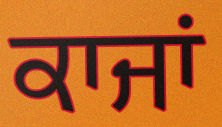
ਕਾਜਾਂ